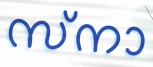
സ്‌നാ